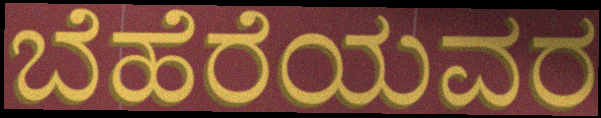
ಬೆಹೆರೆಯವರ